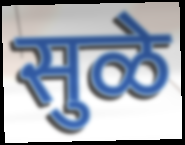
सुळे